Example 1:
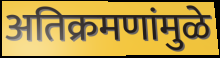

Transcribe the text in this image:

अतिक्रमणांमुळे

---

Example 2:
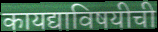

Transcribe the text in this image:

कायद्याविषयीची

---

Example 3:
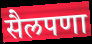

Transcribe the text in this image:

सैलपणा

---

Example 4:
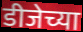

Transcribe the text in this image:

डीजेच्या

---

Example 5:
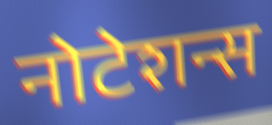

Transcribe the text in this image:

नोटेशन्स